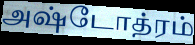
அஷ்டோத்ரம்